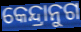
କେନ୍ଦ୍ରାନୁଗ